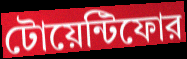
টোয়েন্টিফোর